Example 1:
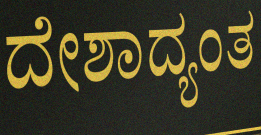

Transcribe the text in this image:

ದೇಶಾದ್ಯಂತ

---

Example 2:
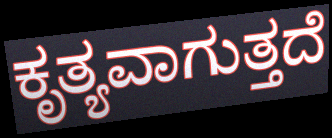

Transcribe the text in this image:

ಕೃತ್ಯವಾಗುತ್ತದೆ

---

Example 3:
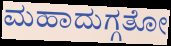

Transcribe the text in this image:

ಮಹಾದುಗ್ಗತೋ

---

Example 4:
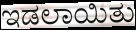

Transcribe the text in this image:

ಇಡಲಾಯಿತು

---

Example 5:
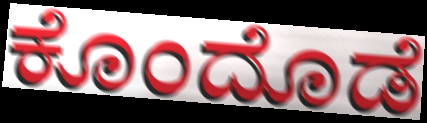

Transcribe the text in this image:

ಕೊಂದೊಡೆ